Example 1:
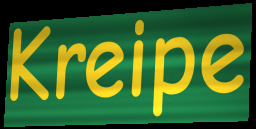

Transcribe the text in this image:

Kreipe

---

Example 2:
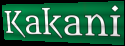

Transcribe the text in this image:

Kakani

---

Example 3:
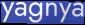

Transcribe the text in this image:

yagnya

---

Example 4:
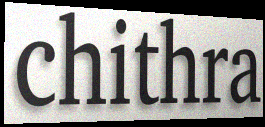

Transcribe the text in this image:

chithra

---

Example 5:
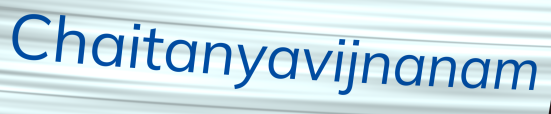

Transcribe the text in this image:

Chaitanyavijnanam